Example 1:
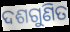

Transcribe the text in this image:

ଦଶଗୁଣିତ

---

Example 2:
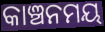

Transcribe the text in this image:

କାଞ୍ଚନମୟ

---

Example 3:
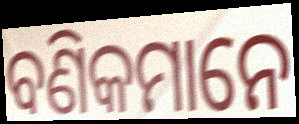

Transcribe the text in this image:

ବଣିକମାନେ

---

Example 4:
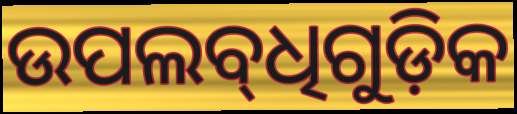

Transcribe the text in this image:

ଉପଲବ୍‌ଧିଗୁଡ଼ିକ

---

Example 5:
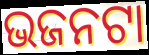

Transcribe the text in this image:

ଭଜନଟା